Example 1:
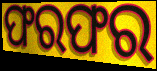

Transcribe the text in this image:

ଫରଫର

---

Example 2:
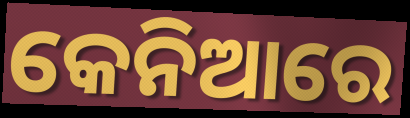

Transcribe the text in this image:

କେନିଆରେ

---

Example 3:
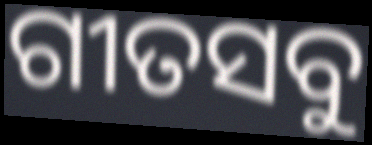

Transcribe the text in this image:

ଗୀତସବୁ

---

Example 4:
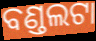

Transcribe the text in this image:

ବଣ୍ଡଲଟା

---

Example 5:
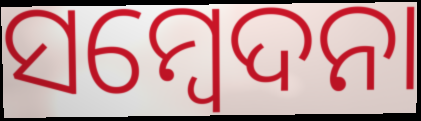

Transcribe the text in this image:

ସମ୍ବେଦନା